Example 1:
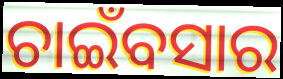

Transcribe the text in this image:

ଚାଇଁବସାର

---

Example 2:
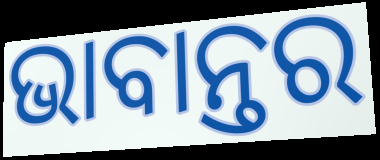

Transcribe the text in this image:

ଭାବାନ୍ତର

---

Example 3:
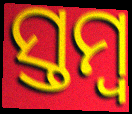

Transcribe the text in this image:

ସ୍ତମ୍ଵ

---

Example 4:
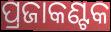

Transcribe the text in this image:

ପ୍ରଜାକଣ୍ଟକ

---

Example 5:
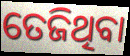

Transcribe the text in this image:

ତେଜିଥିବା